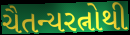
ચૈતન્યરત્નોથી